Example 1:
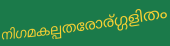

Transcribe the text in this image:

നിഗമകല്പതരോര്ഗ്ഗളിതം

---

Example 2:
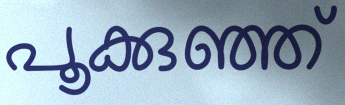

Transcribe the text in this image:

പൂക്കുഞ്ഞ്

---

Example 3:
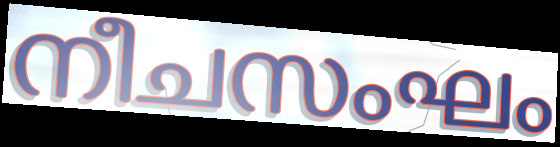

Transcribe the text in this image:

നീചസംഘം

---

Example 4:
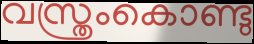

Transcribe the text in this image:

വസ്ത്രംകൊണ്ടു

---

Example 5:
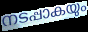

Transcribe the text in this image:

നടപ്പാകയും